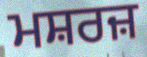
ਮਸ਼ਰਜ਼